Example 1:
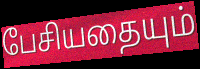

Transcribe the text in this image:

பேசியதையும்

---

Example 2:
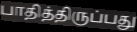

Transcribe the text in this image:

பாதித்திருப்பது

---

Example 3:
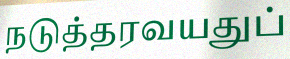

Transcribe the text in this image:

நடுத்தரவயதுப்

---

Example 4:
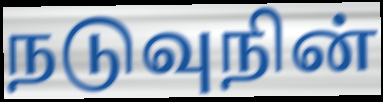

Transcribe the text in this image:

நடுவுநின்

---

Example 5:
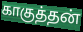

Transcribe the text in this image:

காகுத்தன்